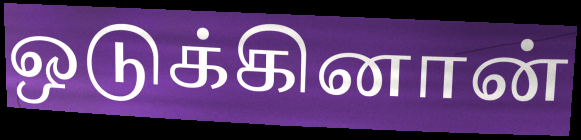
ஒடுக்கினான்